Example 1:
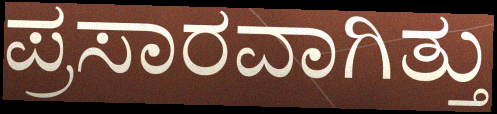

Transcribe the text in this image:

ಪ್ರಸಾರವಾಗಿತ್ತು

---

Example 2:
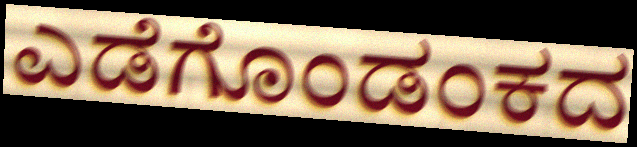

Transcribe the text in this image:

ಎಡೆಗೊಂಡಂಕದ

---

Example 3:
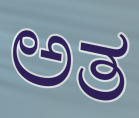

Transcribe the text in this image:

ಅತ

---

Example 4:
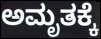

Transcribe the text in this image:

ಅಮೃತಕ್ಕೆ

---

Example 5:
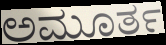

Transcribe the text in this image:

ಅಮೂರ್ತ